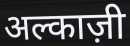
अल्काज़ी